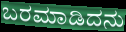
ಬರಮಾಡಿದನು